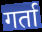
गर्ता